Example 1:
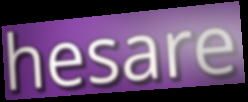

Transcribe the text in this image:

hesare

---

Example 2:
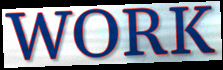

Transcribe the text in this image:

WORK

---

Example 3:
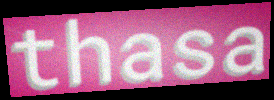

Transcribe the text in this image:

thasa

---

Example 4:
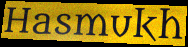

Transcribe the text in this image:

Hasmukh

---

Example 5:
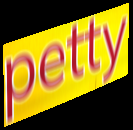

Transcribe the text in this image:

petty